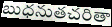
బుధనుతచరితా